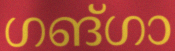
ഗങ്ഗാ